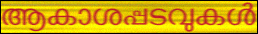
ആകാശപ്പടവുകൾ